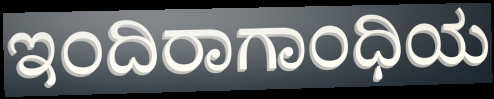
ಇಂದಿರಾಗಾಂಧಿಯ